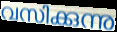
വസിക്കുന്നു